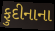
ફુદીનાના